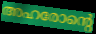
അഹരോന്റെ